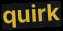
quirk